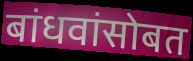
बांधवांसोबत